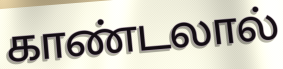
காண்டலால்